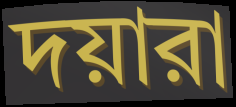
দয়ারা